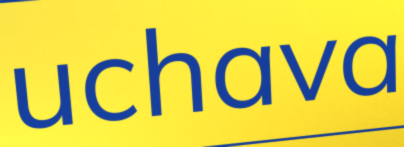
uchava